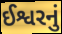
ઈશ્વરનું